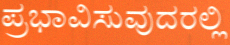
ಪ್ರಭಾವಿಸುವುದರಲ್ಲಿ